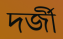
দৰ্জী